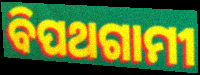
ବିପଥଗାମୀ